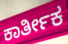
ಕಾರ್ತೀಕ